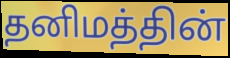
தனிமத்தின்